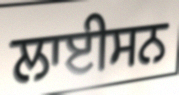
ਲਾਈਸਨ